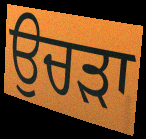
ਉਚੜਾ